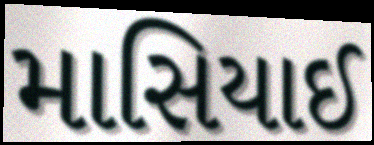
માસિયાઈ